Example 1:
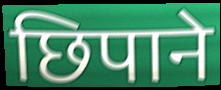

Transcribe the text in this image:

छिपाने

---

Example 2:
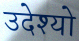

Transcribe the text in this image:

उदेश्यो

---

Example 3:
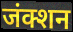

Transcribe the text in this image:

जंक्शन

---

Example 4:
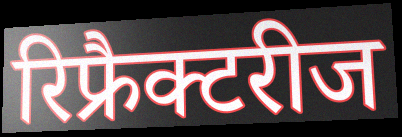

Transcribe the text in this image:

रिफ्रैक्टरीज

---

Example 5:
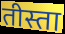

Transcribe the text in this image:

तीस्ता